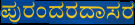
ಪುರಂದರದಾಸರ